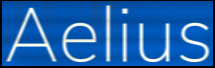
Aelius